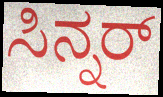
ಸಿನ್ನರ್